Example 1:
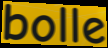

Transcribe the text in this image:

bolle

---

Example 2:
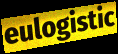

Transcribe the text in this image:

eulogistic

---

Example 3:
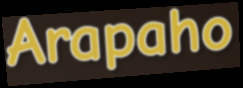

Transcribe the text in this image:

Arapaho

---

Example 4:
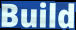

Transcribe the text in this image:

Build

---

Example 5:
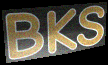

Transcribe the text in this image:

BKS